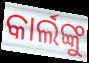
କାର୍ଲଙ୍କୁ